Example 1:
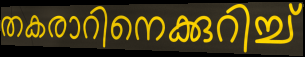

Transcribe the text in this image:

തകരാറിനെക്കുറിച്ച്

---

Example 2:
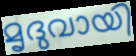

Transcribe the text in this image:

മൃദുവായി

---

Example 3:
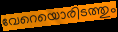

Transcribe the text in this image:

വേറെയൊരിടത്തും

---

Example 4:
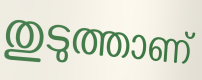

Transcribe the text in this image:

തുടുത്താണ്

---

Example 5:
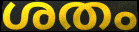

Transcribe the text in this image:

ശതം